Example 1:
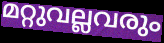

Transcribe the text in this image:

മറ്റുവല്ലവരും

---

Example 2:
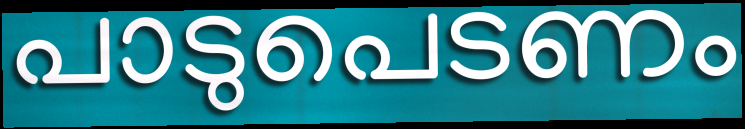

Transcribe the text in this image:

പാടുപെടണം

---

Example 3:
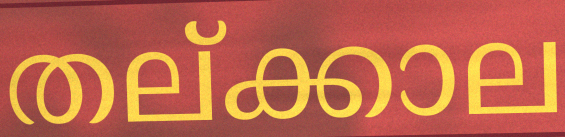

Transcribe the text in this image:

തല്ക്കാല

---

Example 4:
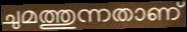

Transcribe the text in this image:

ചുമത്തുന്നതാണ്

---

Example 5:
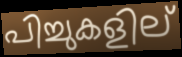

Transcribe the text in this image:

പിച്ചുകളില്